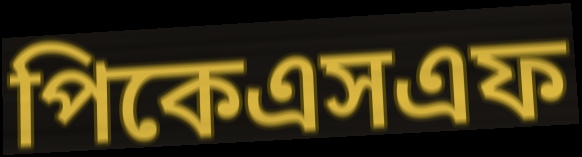
পিকেএসএফ